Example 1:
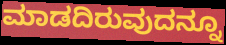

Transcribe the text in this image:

ಮಾಡದಿರುವುದನ್ನೂ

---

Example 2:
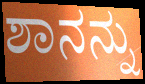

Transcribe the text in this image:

ಶಾನನ್ನು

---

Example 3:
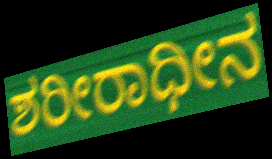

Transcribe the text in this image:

ಶರೀರಾಧೀನ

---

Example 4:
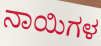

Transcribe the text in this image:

ನಾಯಿಗಳ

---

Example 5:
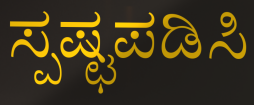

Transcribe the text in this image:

ಸ್ಪಷ್ಟಪಡಿಸಿ